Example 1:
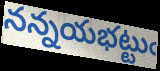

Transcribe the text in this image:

నన్నయభట్టుఁ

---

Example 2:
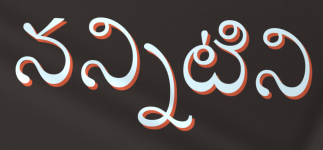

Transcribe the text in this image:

నన్నిటిని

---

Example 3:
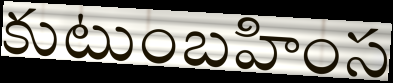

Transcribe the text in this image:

కుటుంబహింస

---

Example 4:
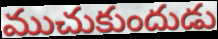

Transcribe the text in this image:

ముచుకుందుడు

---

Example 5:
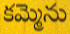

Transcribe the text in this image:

కమ్మెను